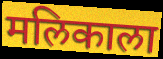
मलिकाला